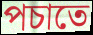
পচাতে